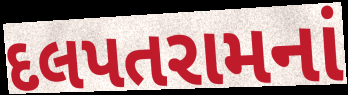
દલપતરામનાં